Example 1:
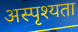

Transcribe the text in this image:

अस्पृश्यता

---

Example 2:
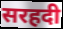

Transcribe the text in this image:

सरहदी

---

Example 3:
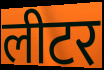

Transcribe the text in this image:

लीटर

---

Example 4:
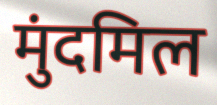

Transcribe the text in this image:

मुंदमिल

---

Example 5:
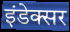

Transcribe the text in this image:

इंडेक्सर